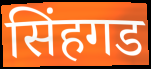
सिंहगड